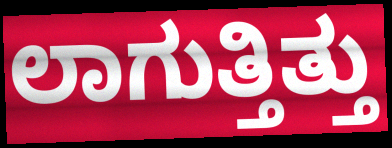
ಲಾಗುತ್ತಿತ್ತು